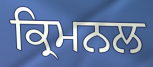
ਕ੍ਰਿਮਨਲ